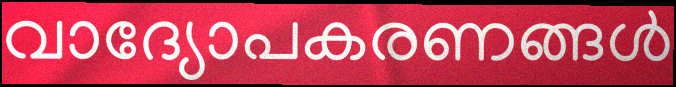
വാദ്യോപകരണങ്ങൾ